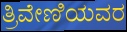
ತ್ರಿವೇಣಿಯವರ